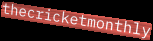
thecricketmonthly